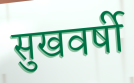
सुखवर्षी